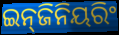
ଇନ୍‍ଜିନିୟରିଂ